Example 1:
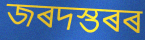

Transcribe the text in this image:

জৰদস্তৰৰ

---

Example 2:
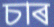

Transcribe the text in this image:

চাৰ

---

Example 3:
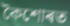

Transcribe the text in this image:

কৈশোৰত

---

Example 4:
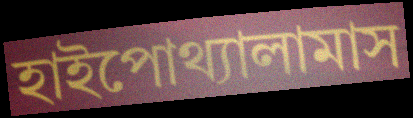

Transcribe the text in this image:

হাইপোথ্যালামাস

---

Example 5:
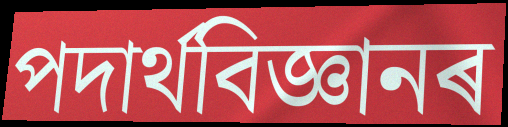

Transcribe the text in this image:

পদাৰ্থবিজ্ঞানৰ